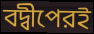
বদ্বীপেরই